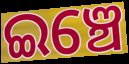
ଇଞ୍ଚେ